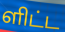
ளிட்ட